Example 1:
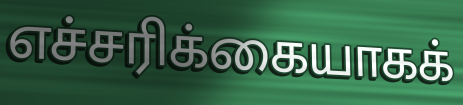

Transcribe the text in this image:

எச்சரிக்கையாகக்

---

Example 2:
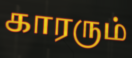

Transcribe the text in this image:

காரரும்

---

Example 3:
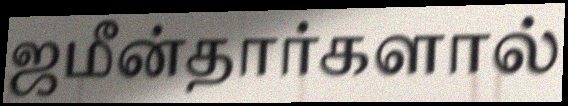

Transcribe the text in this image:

ஜமீன்தார்களால்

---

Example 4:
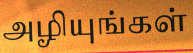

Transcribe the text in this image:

அழியுங்கள்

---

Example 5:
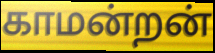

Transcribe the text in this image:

காமன்றன்